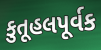
કુતૂહલપૂર્વક